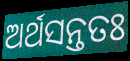
ଅର୍ଥସନ୍ତତଃ